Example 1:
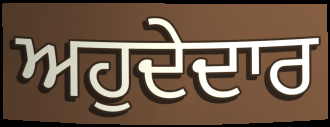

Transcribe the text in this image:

ਅਹੁਦੇਦਾਰ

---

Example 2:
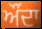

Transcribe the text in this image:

ਔਂਦਾ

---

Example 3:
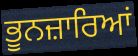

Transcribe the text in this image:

ਭੂਨਜ਼ਾਰਿਆਂ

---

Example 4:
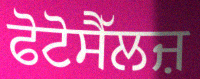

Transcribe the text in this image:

ਫੋਟੋਸੈੱਲਜ਼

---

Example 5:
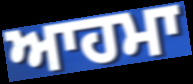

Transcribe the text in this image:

ਆਹਮਾ